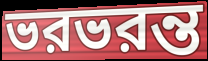
ভরভরন্ত